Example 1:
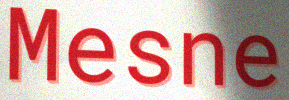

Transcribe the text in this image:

Mesne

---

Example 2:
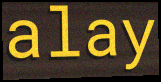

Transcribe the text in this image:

alay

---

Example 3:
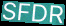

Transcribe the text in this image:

SFDR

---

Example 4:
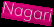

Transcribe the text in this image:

Nagari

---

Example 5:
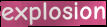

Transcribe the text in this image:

explosion